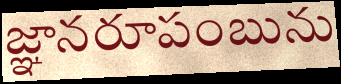
జ్ఞానరూపంబును